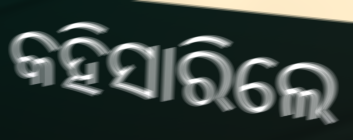
କହିସାରିଲେ